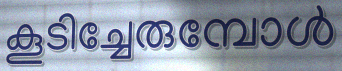
കൂടിച്ചേരുമ്പോൾ